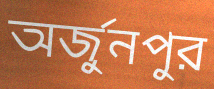
অর্জুনপুর